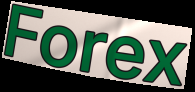
Forex